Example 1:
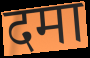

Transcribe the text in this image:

दमा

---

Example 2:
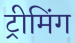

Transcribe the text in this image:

ट्रीमिंग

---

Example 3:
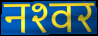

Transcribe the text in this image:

नश्वर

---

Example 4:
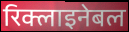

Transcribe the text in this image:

रिक्लाइनेबल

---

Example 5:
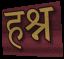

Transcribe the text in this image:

हश्न